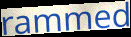
rammed